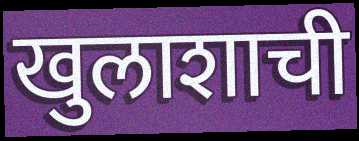
खुलाशाची